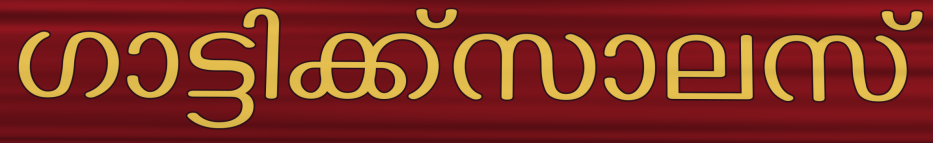
ഗാട്ടിക്ക്സാലസ്